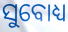
ସୁବୋଧ୍ୟ